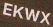
EKWX